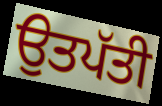
ਉਤਪੱਤੀ